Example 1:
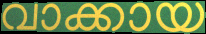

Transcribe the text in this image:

വാക്കായ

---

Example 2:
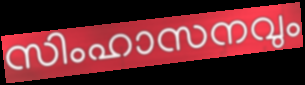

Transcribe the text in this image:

സിംഹാസനവും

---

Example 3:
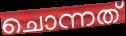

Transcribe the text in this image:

ചൊന്നത്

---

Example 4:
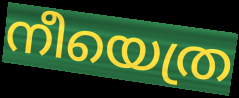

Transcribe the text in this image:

നീയെത്ര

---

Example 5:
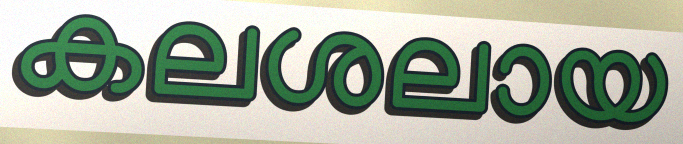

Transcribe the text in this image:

കലശലായ